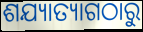
ଶଯ୍ୟାତ୍ୟାଗଠାରୁ